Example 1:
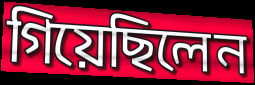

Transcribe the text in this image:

গিয়েছিলেন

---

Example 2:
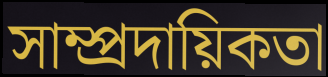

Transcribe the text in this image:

সাম্প্রদায়িকতা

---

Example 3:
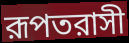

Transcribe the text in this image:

রূপতরাসী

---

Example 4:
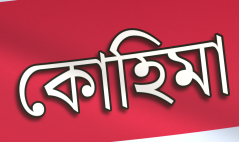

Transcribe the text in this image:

কোহিমা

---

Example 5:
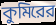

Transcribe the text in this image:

কুমিরের